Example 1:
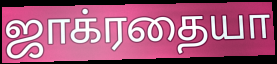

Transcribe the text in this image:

ஜாக்ரதையா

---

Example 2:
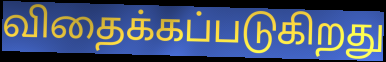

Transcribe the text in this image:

விதைக்கப்படுகிறது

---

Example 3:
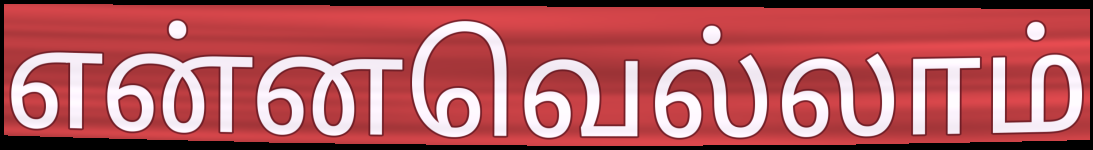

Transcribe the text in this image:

என்னவெல்லாம்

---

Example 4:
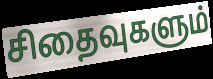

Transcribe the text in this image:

சிதைவுகளும்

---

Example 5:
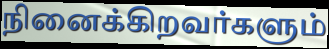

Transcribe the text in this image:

நினைக்கிறவர்களும்